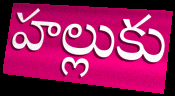
హల్లుకు